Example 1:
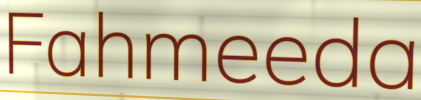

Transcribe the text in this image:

Fahmeeda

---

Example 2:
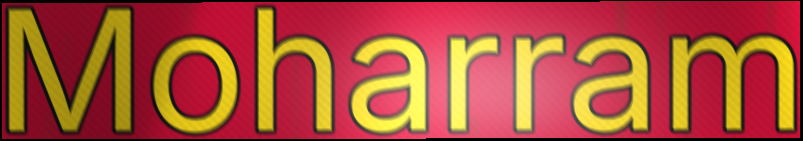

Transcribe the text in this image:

Moharram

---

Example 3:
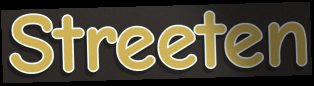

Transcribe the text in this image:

Streeten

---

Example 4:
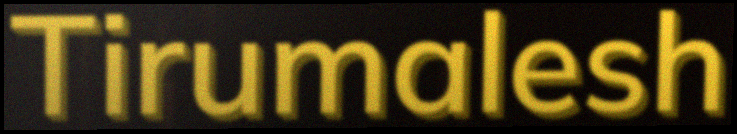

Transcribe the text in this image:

Tirumalesh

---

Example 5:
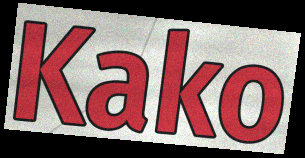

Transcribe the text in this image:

Kako